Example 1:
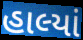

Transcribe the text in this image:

હાલ્યાં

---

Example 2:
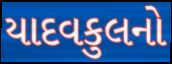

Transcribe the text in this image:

યાદવકુલનો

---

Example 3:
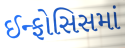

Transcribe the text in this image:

ઈન્ફોસિસમાં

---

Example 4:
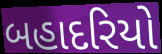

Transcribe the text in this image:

બહાદરિયો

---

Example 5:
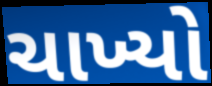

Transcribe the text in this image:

ચાખ્યો